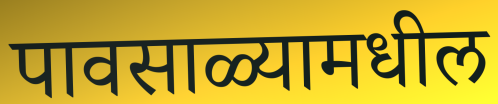
पावसाळ्यामधील